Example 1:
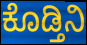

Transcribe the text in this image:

ಕೊಡ್ತಿನಿ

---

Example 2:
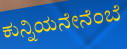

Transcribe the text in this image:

ಕುನ್ನಿಯನೇನೆಂಬೆ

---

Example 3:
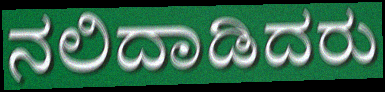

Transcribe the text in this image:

ನಲಿದಾಡಿದರು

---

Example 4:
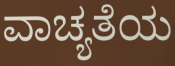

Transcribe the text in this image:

ವಾಚ್ಯತೆಯ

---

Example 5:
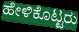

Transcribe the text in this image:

ಹೇಳಿಕೊಟ್ಟರು